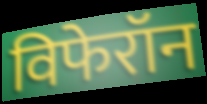
विफेरॉन